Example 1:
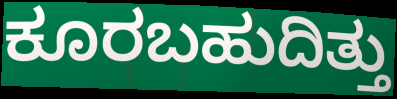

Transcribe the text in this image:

ಕೂರಬಹುದಿತ್ತು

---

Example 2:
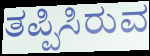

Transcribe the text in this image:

ತಪ್ಪಿಸಿರುವ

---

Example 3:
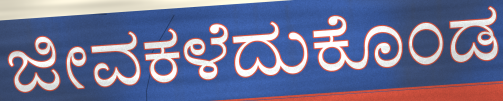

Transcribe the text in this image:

ಜೀವಕಳೆದುಕೊಂಡ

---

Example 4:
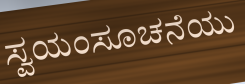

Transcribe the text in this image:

ಸ್ವಯಂಸೂಚನೆಯು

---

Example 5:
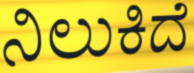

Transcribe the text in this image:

ನಿಲುಕಿದೆ